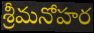
శ్రీమనోహర